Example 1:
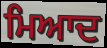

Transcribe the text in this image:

ਮਿਆਦ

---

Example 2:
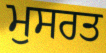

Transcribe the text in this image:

ਮੁਸਰਤ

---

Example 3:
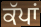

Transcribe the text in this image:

ਕੱਪਾਂ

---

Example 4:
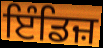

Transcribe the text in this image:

ਇੰਡਿਜ਼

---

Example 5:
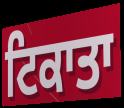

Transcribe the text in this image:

ਟਿਕਾਤਾ